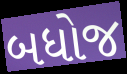
બધોજ